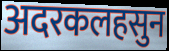
अदरकलहसुन